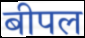
बीपल